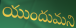
యుందుమని